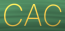
CAC